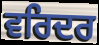
ਵਰਿਦਰ